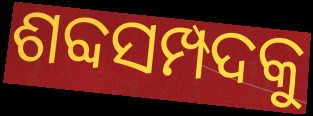
ଶବ୍ଦସମ୍ପଦକୁ